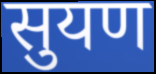
सुयण